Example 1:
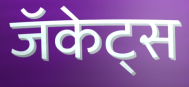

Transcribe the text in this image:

जॅकेट्स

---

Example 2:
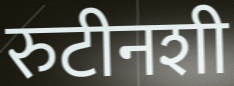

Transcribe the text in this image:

रुटीनशी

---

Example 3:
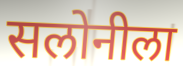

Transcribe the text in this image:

सलोनीला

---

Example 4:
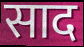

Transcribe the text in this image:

साद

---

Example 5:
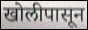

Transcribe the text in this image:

खोलीपासून